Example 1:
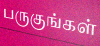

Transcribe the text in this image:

பருகுங்கள்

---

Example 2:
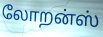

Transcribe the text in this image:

லோறன்ஸ்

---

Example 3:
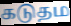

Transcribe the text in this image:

கடுதம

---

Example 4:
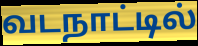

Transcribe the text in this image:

வடநாட்டில்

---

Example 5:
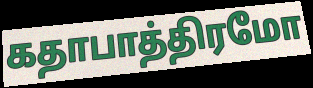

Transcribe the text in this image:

கதாபாத்திரமோ